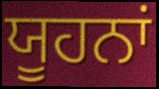
ਯੂਹਨਾਂ